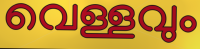
വെള്ളവും